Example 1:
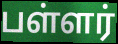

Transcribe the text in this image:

பள்ளர்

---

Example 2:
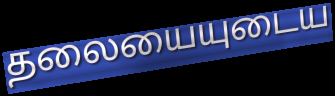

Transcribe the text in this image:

தலையையுடைய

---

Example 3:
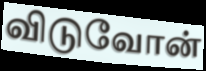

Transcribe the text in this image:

விடுவோன்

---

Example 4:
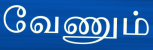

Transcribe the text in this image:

வேணும்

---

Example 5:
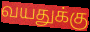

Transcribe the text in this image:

வயதுக்கு